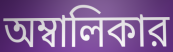
অম্বালিকার